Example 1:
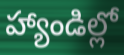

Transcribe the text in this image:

హ్యాండిల్లో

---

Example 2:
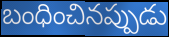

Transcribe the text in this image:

బంధించినప్పుడు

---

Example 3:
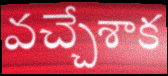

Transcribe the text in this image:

వచ్చేశాక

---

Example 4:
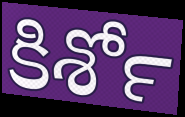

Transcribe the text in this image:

కిశోర్‍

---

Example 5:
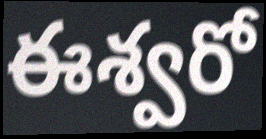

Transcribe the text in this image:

ఈశ్వరో